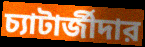
চ্যাটার্জীদার